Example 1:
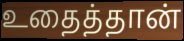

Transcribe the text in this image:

உதைத்தான்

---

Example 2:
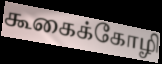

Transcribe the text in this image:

கூகைக்கோழி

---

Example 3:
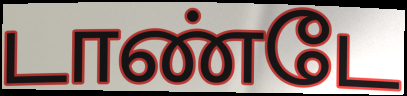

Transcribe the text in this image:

டாண்டே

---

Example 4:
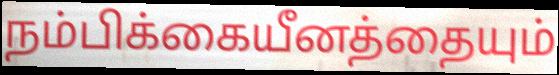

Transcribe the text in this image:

நம்பிக்கையீனத்தையும்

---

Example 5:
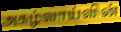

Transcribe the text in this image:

அகழ்வாய்வின்